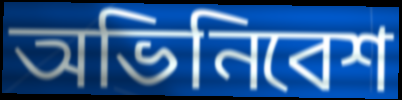
অভিনিবেশ